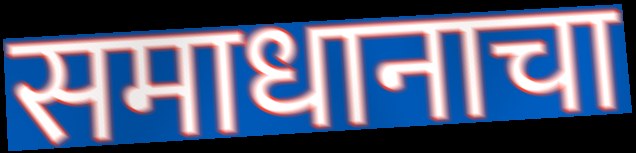
समाधानाचा